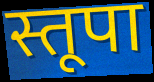
स्तूपा